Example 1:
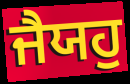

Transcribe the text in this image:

ਜੈਯਹੁ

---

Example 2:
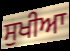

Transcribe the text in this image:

ਸੁਖੀਆ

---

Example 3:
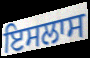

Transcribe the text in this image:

ਇਸਲਾਸ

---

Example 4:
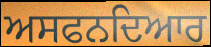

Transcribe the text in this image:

ਅਸਫਨਦਿਆਰ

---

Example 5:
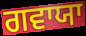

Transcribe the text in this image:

ਗਵਾਯਾ